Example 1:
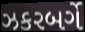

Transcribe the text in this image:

ઝકરબર્ગે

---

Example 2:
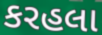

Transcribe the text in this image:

કરહલા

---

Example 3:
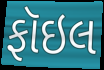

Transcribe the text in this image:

ફૉઇલ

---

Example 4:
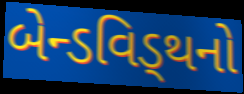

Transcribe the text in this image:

બેન્ડવિડ્થનો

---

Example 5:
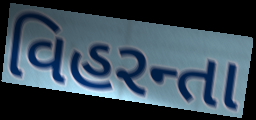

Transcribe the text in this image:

વિહરન્તા